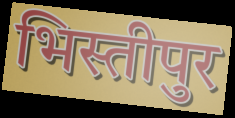
भिस्तीपुर